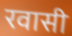
रवासी